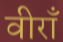
वीराँ